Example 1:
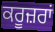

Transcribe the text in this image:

ਕਰੂਜ਼ਰਾਂ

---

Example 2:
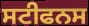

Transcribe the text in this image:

ਸਟੀਫਨਸ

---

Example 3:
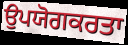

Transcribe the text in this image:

ਉਪਯੋਗਕਰਤਾ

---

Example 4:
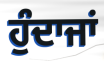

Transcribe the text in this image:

ਹੁੰਦਾਜਾਂ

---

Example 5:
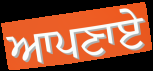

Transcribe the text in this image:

ਆਪਣਾਏ